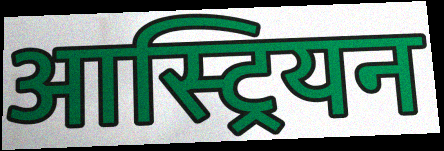
आस्ट्रियन